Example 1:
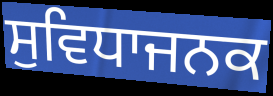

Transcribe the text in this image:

ਸੁਵਿਧਾਜਨਕ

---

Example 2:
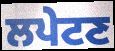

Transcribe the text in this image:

ਲਪੇਟਣ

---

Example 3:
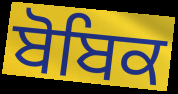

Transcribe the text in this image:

ਬੋਬਿਕ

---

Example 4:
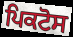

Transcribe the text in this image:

ਪਿਕਟੋਸ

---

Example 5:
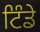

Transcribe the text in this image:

ਟਿੰਡੇ